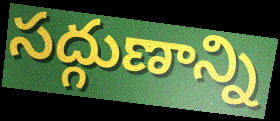
సద్గుణాన్ని